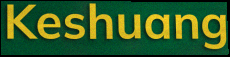
Keshuang